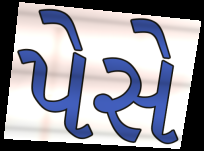
પેસે